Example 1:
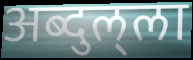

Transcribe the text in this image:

अब्दुल्ला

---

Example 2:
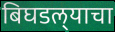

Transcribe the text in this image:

बिघडल्याचा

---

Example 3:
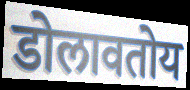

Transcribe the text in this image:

डोलावतोय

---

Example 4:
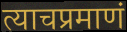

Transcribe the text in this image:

त्याचप्रमाणं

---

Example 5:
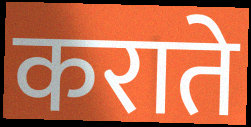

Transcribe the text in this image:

कराते